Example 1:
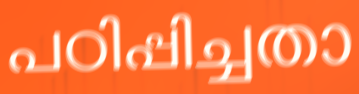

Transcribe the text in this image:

പഠിപ്പിച്ചതാ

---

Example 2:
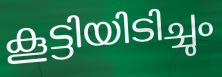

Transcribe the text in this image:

കൂട്ടിയിടിച്ചും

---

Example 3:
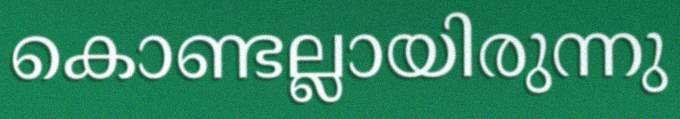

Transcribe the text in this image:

കൊണ്ടല്ലായിരുന്നു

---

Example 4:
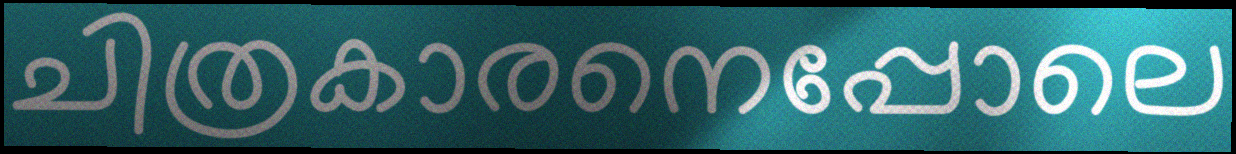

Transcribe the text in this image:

ചിത്രകാരനെപ്പോലെ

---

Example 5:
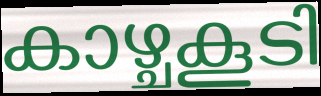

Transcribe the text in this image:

കാഴ്ചകൂടി